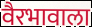
वैरभावाला